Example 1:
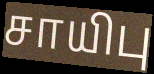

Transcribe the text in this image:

சாயிபு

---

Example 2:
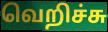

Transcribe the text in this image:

வெறிச்சு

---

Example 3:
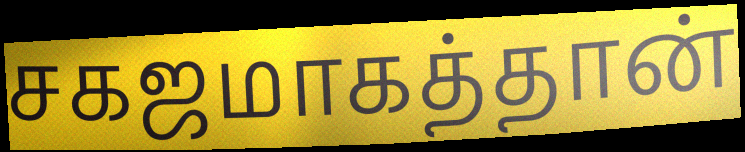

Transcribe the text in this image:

சகஜமாகத்தான்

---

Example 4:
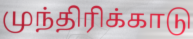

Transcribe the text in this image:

முந்திரிக்காடு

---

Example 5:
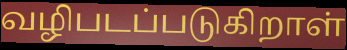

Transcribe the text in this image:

வழிபடப்படுகிறாள்